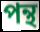
পন্থ